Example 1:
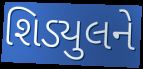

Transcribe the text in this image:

શિડ્યુલને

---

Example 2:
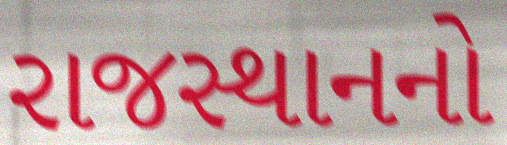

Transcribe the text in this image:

રાજસ્થાનનો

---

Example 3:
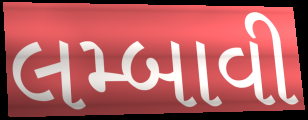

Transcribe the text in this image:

લમ્બાવી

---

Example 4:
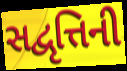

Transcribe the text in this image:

સદ્વૃત્તિની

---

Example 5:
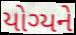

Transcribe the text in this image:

યોગ્યને